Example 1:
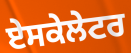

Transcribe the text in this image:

ਏਸਕੇਲੇਟਰ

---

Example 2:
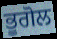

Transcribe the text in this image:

ਭੂਗੋਲ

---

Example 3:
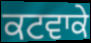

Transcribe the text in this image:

ਕਟਵਾਕੇ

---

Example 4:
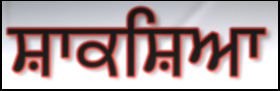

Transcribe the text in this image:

ਸ਼ਾਕਸ਼ਿਆ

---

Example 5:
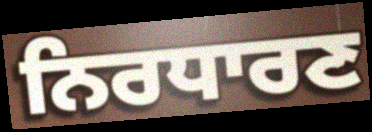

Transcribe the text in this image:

ਨਿਰਧਾਰਣ